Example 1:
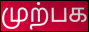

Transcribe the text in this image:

முற்பக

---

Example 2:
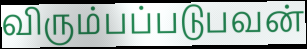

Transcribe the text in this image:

விரும்பப்படுபவன்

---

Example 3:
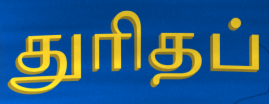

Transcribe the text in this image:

துரிதப்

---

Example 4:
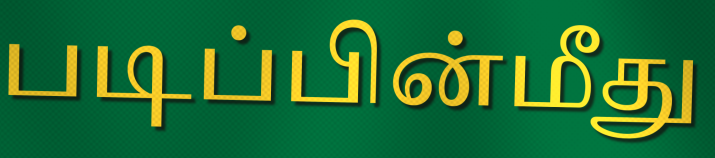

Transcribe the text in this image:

படிப்பின்மீது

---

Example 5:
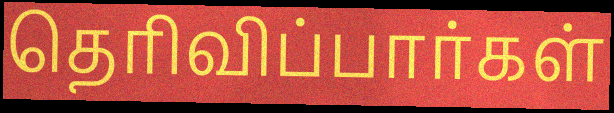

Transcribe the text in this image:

தெரிவிப்பார்கள்